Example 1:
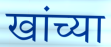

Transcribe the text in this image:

खांच्या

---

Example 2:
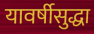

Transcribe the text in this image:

यावर्षीसुद्धा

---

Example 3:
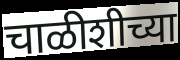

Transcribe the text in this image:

चाळीशीच्या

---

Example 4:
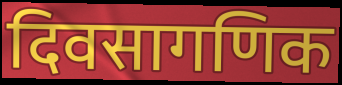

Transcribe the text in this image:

दिवसागणिक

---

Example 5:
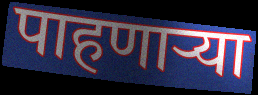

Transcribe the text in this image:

पाहणार्‍या